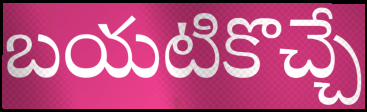
బయటికొచ్చే